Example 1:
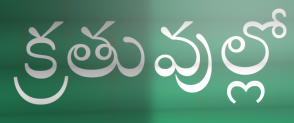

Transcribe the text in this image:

క్రతువుల్లో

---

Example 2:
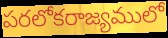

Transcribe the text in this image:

పరలోకరాజ్యములో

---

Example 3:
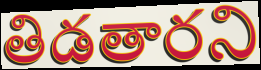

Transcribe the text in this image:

తిడతారని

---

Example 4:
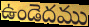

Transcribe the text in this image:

ఉండెదము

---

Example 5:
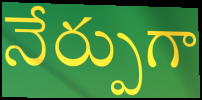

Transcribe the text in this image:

నేర్పుగా